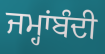
ਜਮ੍ਹਾਂਬੰਦੀ